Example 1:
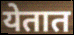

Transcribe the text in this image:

येतात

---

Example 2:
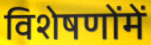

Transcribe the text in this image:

विशेषणोंमें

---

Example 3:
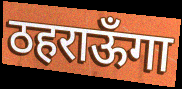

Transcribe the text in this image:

ठहराऊँगा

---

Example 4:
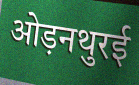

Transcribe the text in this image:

ओड़नथुरई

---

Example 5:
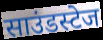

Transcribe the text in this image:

साउंडस्टेज